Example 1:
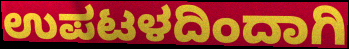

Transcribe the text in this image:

ಉಪಟಳದಿಂದಾಗಿ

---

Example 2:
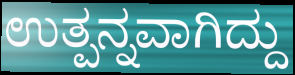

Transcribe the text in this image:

ಉತ್ಪನ್ನವಾಗಿದ್ದು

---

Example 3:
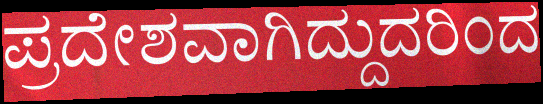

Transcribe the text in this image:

ಪ್ರದೇಶವಾಗಿದ್ದುದರಿಂದ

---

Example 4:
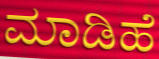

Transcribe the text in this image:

ಮಾಡಿಹೆ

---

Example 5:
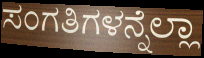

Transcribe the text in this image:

ಸಂಗತಿಗಳನ್ನೆಲ್ಲಾ